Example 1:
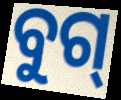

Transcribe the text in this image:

ବୁଗ୍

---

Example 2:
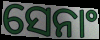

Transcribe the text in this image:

ସେନାଂ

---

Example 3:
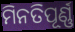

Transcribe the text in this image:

ମିନତିପୂର୍ଣ୍ଣ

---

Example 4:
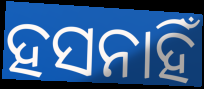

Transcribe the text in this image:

ହସନାହିଁ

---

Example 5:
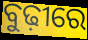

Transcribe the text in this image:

ବୁଢ଼ୀରେ